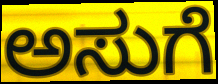
ಅಸುಗೆ